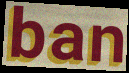
ban